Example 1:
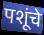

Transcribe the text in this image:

पशूंचे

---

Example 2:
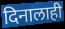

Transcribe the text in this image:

दिनालाही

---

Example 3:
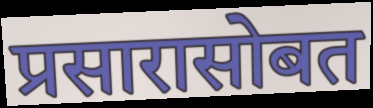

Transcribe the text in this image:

प्रसारासोबत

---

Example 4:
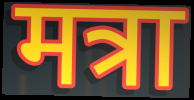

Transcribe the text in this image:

मत्रा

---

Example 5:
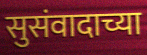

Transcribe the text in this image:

सुसंवादाच्या